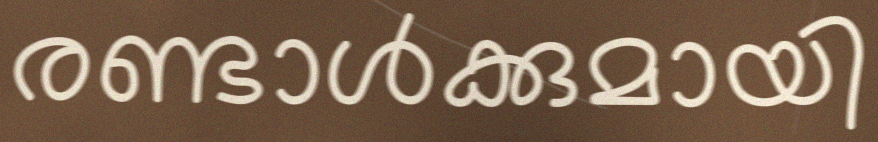
രണ്ടാൾക്കുമായി